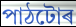
পাঠটোৰ